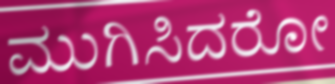
ಮುಗಿಸಿದರೋ